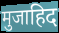
मुजाहिद